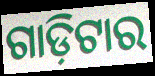
ଗାଡ଼ିଟାର